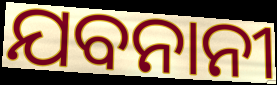
ଯବନାନୀ